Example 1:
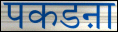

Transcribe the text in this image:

पकडऩा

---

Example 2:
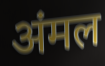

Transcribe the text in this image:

अंमल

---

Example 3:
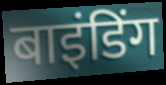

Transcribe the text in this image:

बाइंडिंग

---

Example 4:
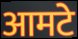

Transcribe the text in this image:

आमटे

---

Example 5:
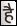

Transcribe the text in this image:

है